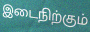
இடைநிற்கும்